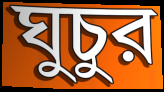
ঘুচুর